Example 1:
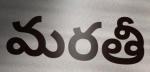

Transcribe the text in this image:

మరతీ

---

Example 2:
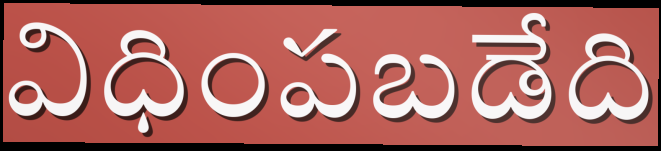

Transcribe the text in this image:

విధింపబడేది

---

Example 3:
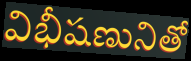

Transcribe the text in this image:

విభీషణునితో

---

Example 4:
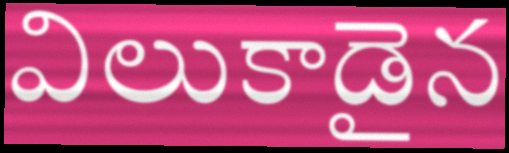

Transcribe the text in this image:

విలుకాడైన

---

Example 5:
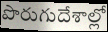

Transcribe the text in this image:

పొరుగుదేశాల్లో